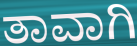
ತಾವಾಗಿ